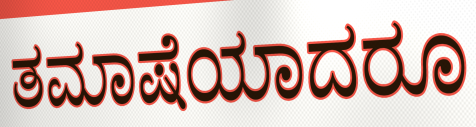
ತಮಾಷೆಯಾದರೂ